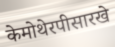
केमोथेरपीसारखे